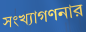
সংখ্যাগণনার